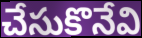
చేసుకొనేవి